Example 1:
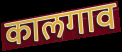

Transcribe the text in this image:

कालगाव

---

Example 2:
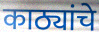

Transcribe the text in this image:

काठ्यांचे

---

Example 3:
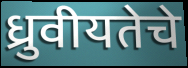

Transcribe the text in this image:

ध्रुवीयतेचे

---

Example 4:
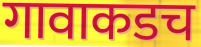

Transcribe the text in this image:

गावाकडच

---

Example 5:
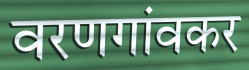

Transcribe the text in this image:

वरणगांवकर